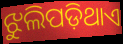
ଝୁଲିପଡ଼ିଥାଏ